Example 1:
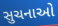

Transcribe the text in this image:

સુચનાઓ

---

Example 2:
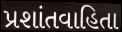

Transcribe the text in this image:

પ્રશાંતવાહિતા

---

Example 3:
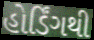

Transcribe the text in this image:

હોર્ડિંગથી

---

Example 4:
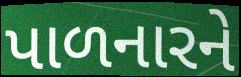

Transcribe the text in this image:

પાળનારને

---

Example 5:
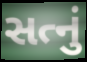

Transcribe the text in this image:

સત્નું